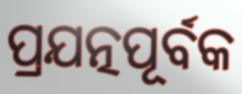
ପ୍ରଯତ୍ନପୂର୍ବକ